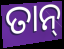
ତାନ୍